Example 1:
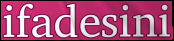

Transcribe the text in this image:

ifadesini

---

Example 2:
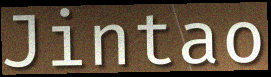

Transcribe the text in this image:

Jintao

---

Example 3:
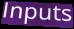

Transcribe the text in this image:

Inputs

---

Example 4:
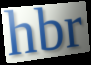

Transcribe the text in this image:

hbr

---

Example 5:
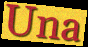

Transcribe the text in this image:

Una